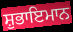
ਸ਼ੁਭਾਇਮਾਨ